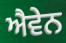
ਐਵੇਨ